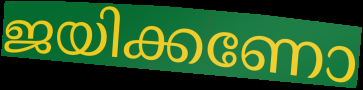
ജയിക്കണോ